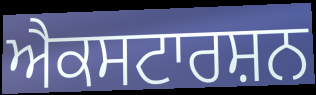
ਐਕਸਟਾਰਸ਼ਨ